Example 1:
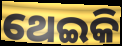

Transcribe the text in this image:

ଥେଇକି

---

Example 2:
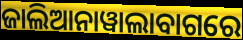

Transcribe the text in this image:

ଜାଲିଆନାୱାଲାବାଗରେ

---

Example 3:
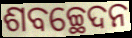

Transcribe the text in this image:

ଶବଚ୍ଛେଦନ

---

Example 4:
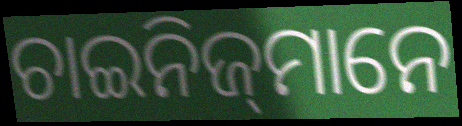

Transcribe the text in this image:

ଚାଇନିଜ୍‍ମାନେ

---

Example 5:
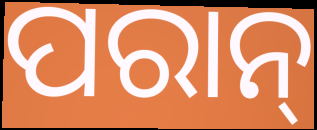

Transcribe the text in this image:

ପରାନ୍